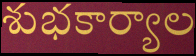
శుభకార్యాల